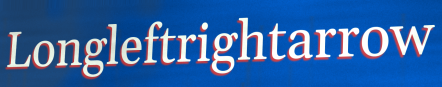
Longleftrightarrow